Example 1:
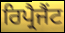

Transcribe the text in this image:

ਰਿਪ੍ਰੈਜੈਂਟ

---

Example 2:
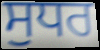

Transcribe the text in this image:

ਸੁਧਰ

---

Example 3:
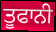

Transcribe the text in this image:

ਤੂਫਾਨੀ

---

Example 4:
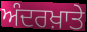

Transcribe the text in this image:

ਅੰਦਰਖ਼ਾਤੇ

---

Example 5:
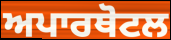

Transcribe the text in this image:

ਅਪਾਰਥੋਟਲ